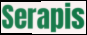
Serapis